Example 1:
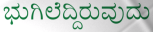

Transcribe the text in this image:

ಭುಗಿಲೆದ್ದಿರುವುದು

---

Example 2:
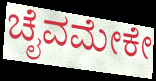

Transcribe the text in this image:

ಚೈವಮೇಕೇ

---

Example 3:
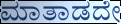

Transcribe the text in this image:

ಮಾತಾಡದೇ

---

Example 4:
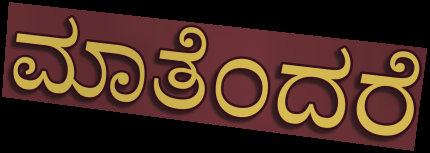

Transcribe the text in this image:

ಮಾತೆಂದರೆ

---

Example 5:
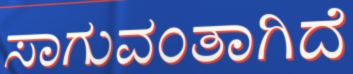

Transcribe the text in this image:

ಸಾಗುವಂತಾಗಿದೆ